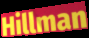
Hillman